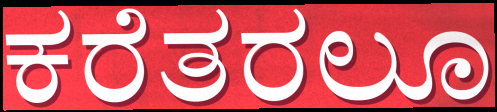
ಕರೆತರಲೂ